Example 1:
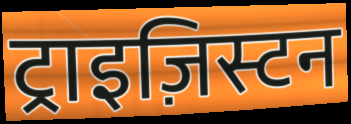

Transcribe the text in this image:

ट्राइज़िस्टन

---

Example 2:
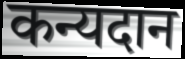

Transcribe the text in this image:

कन्यदान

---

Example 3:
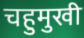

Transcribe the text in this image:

चहुमुखी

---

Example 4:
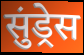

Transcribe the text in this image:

सुंड्रेस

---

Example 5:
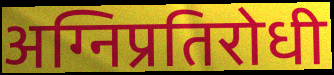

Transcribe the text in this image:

अग्निप्रतिरोधी